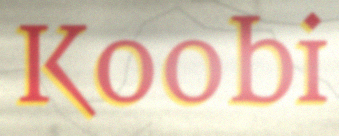
Koobi